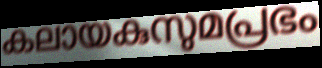
കലായകുസുമപ്രഭം